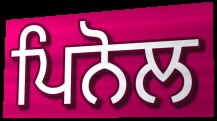
ਪਿਨੋਲ